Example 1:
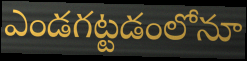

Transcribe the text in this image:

ఎండగట్టడంలోనూ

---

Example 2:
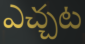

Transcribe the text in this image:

ఎచ్చట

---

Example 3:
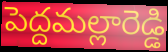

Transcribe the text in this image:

పెద్దమల్లారెడ్డి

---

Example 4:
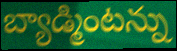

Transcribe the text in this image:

బ్యాడ్మింటన్ను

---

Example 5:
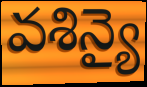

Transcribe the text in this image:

వశిన్యై